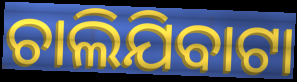
ଚାଲିଯିବାଟା